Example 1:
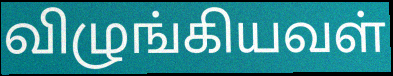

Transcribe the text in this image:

விழுங்கியவள்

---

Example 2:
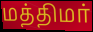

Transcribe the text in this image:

மத்திமர்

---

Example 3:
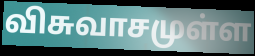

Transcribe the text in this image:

விசுவாசமுள்ள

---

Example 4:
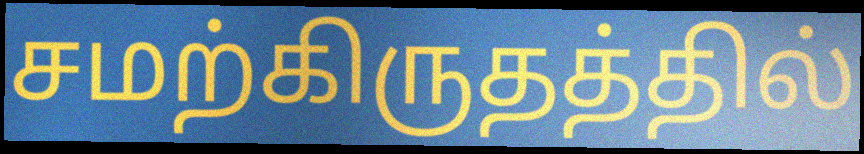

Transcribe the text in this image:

சமற்கிருதத்தில்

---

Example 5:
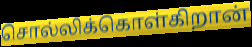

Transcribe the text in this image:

சொல்லிக்கொள்கிறான்